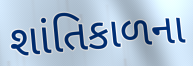
શાંતિકાળના